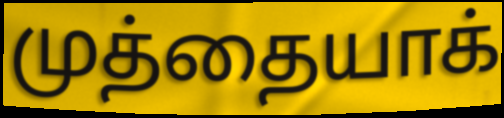
முத்தையாக்